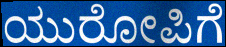
ಯುರೋಪಿಗೆ